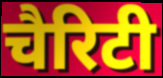
चैरिटी